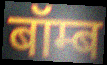
बॉम्ब